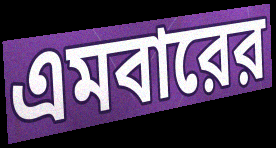
এমবারের